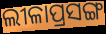
ଲୀଳାପ୍ରସଙ୍ଗ